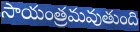
సాయంత్రమవుతుంది